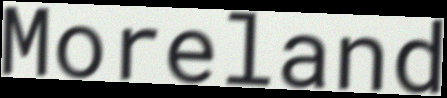
Moreland